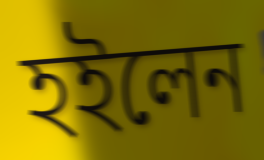
হইলেন